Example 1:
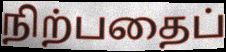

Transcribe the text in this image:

நிற்பதைப்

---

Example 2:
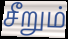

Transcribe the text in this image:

சீறும்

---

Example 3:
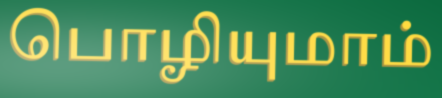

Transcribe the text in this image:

பொழியுமாம்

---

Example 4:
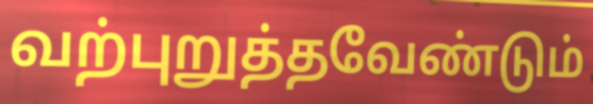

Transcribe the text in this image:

வற்புறுத்தவேண்டும்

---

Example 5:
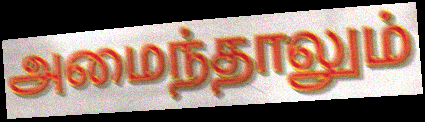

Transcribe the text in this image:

அமைந்தாலும்